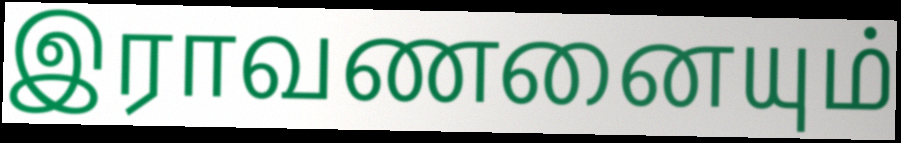
இராவணனையும்